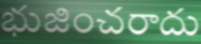
భుజించరాదు